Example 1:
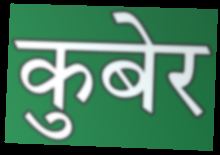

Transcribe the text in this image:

कुबेर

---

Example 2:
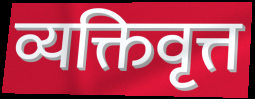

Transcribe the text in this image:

व्यक्तिवृत्त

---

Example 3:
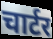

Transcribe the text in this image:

चार्टर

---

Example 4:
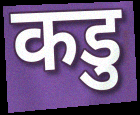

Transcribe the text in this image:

कडु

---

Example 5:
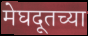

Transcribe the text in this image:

मेघदूतच्या